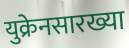
युक्रेनसारख्या